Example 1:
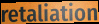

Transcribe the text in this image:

retaliation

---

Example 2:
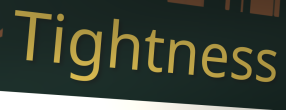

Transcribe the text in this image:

Tightness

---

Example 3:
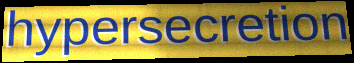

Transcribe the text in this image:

hypersecretion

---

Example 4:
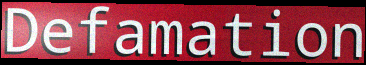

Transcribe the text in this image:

Defamation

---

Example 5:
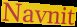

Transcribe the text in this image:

Navnit